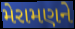
મેરામણને